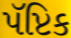
પૅપ્ટિક